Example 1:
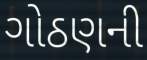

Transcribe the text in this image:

ગોઠણની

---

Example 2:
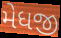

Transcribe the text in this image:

મેધજી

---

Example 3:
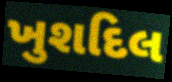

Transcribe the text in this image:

ખુશદિલ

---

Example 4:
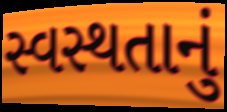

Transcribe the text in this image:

સ્વસ્થતાનું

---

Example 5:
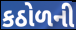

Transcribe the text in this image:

કઠોળની